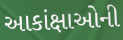
આકાંક્ષાઓની